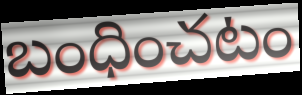
బంధించటం